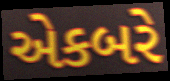
એકબરે